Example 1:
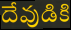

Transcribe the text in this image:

దేవుడికి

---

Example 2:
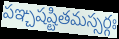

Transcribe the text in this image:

పఞ్చషష్టితమస్సర్గః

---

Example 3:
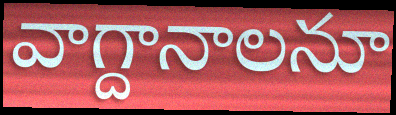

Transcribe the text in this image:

వాగ్దానాలనూ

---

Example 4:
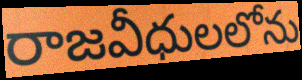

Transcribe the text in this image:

రాజవీధులలోను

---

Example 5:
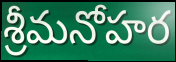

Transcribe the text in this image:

శ్రీమనోహర